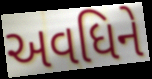
અવધિને